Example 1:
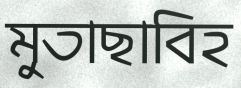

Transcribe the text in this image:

মুতাছাবিহ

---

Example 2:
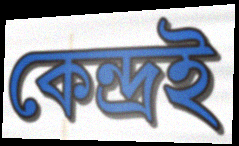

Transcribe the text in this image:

কেন্দ্ৰই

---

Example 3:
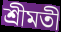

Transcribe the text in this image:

শ্ৰীমতী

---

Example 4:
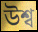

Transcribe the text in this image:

উশ্ব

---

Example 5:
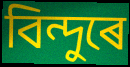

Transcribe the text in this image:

বিন্দুৰে